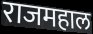
राजमहाल